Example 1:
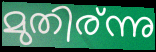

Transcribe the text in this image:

മുതിര്ന്നു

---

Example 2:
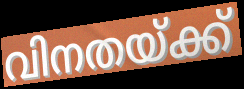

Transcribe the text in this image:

വിനതയ്ക്ക്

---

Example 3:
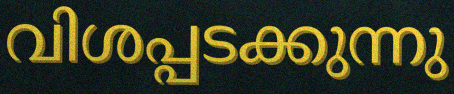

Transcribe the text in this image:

വിശപ്പടക്കുന്നു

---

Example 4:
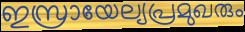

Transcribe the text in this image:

ഇസ്രായേല്യപ്രമുഖരും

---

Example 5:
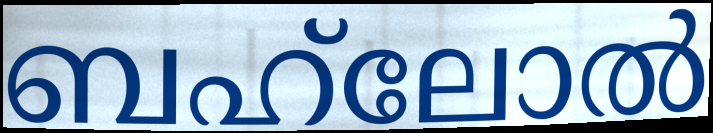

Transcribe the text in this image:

ബഹ്‌ലോൽ